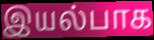
இயல்பாக